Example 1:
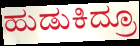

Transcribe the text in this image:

ಹುಡುಕಿದ್ರೂ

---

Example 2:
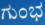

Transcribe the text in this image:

ಗುಂಭ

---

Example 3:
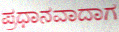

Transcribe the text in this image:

ಪ್ರಧಾನವಾದಾಗ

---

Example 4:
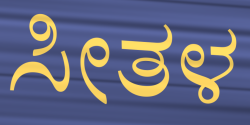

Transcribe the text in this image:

ಸೀತಳ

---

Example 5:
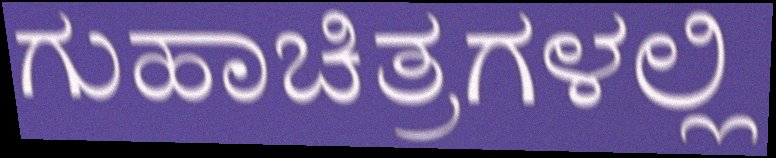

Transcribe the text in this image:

ಗುಹಾಚಿತ್ರಗಳಲ್ಲಿ